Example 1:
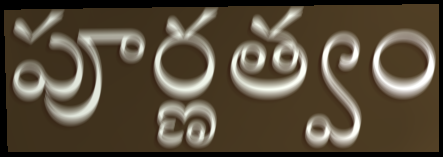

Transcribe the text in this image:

పూర్ణత్వం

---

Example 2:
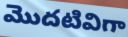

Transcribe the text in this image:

మొదటివిగా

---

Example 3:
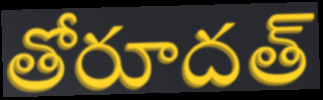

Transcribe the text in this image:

తోరూదత్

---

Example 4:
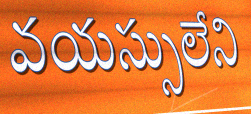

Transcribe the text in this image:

వయస్సులేని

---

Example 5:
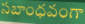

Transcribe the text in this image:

సబాంధవంగా